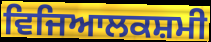
ਵਿਜਿਆਲਕਸ਼ਮੀ